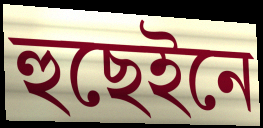
হুছেইনে